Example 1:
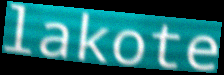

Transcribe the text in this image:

lakote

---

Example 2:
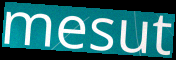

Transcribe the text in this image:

mesut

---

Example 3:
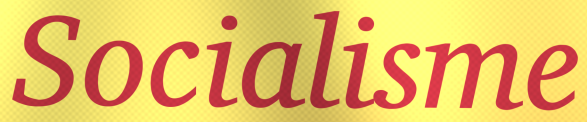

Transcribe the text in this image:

Socialisme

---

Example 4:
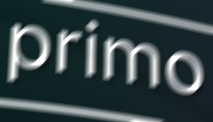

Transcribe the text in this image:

primo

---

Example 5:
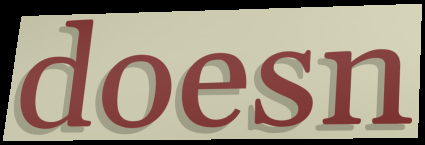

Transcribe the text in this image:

doesn